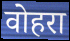
वोहरा